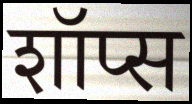
शॉप्स